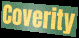
Coverity